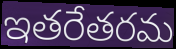
ఇతరేతరమ